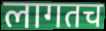
लागतच